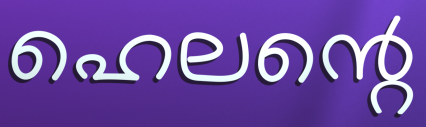
ഹെലന്റെ